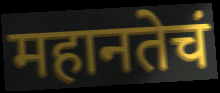
महानतेचं